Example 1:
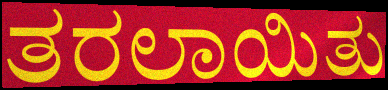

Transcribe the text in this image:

ತರಲಾಯಿತು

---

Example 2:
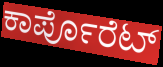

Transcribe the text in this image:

ಕಾರ್ಪೊರೆಟ್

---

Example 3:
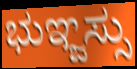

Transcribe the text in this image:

ಭುಞ್ಜಸ್ಸು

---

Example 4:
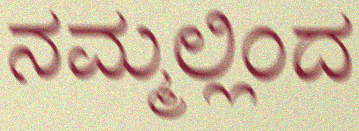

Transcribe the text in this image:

ನಮ್ಮಲ್ಲಿಂದ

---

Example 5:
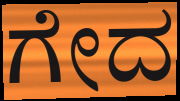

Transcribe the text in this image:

ಗೇದ